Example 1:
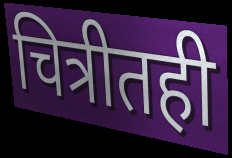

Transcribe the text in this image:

चित्रीतही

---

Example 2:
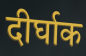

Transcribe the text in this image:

दीर्घाक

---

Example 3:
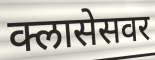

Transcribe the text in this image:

क्लासेसवर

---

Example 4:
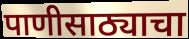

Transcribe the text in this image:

पाणीसाठ्याचा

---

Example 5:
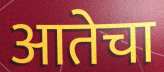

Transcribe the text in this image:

आतेचा